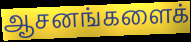
ஆசனங்களைக்